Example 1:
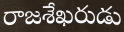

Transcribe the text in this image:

రాజశేఖరుడు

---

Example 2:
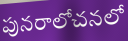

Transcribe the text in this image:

పునరాలోచనలో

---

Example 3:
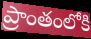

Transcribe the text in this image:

ప్రాంతంలోకి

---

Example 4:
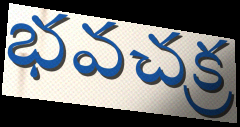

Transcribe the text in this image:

భవచక్ర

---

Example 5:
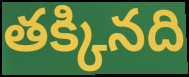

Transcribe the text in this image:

తక్కినది